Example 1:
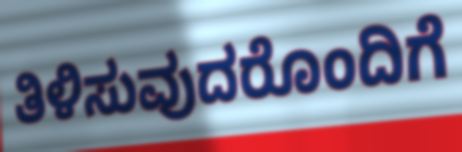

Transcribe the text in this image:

ತಿಳಿಸುವುದರೊಂದಿಗೆ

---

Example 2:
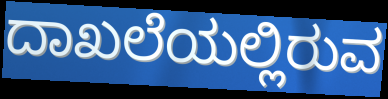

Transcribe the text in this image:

ದಾಖಲೆಯಲ್ಲಿರುವ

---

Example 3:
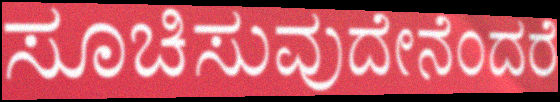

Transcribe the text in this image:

ಸೂಚಿಸುವುದೇನೆಂದರೆ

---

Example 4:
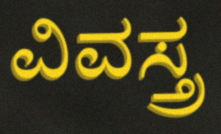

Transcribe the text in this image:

ವಿವಸ್ತ್ರ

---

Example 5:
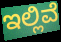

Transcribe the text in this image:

ಇಲ್ಲಿವೆ